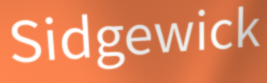
Sidgewick